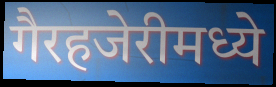
गैरहजेरीमध्ये